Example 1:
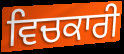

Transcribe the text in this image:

ਵਿਚਕਾਰੀ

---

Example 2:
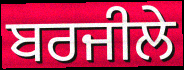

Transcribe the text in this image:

ਬਰਜੀਲੇ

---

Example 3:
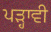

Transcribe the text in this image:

ਪੜ੍ਹਾਵੀ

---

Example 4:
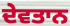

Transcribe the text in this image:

ਦੇਵਤਾਨ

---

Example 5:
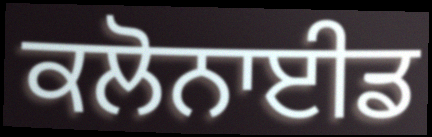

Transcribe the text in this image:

ਕਲੋਨਾਈਡ